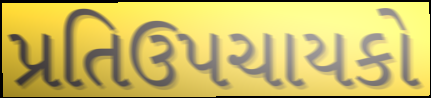
પ્રતિઉપચાયકો